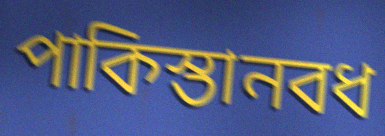
পাকিস্তানবধ